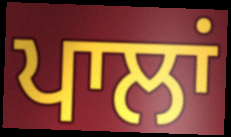
ਪਾਲਾਂ